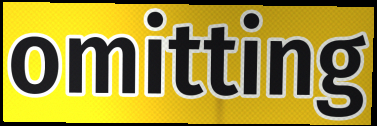
omitting